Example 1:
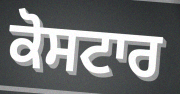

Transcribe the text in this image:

ਕੋਸਟਾਰ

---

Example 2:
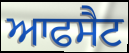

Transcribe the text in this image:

ਆਫਸੈਟ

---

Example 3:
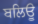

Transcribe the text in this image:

ਬਲਿਊ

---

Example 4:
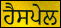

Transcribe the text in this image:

ਹੈਸਪੇਲ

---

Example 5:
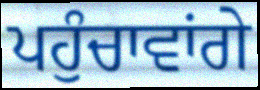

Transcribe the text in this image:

ਪਹੁੰਚਾਵਾਂਗੇ